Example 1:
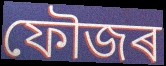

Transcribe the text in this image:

ফৌজৰ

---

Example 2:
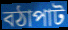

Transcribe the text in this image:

বঠাপাট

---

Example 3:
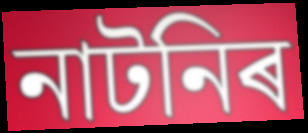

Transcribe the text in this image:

নাটনিৰ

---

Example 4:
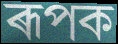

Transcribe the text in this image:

ৰূপক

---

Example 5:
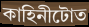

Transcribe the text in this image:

কাহিনীটোত